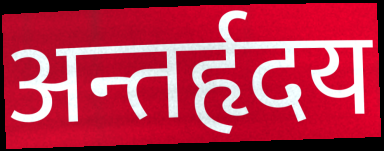
अन्तर्हृदय